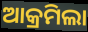
ଆକ୍ରମିଲା